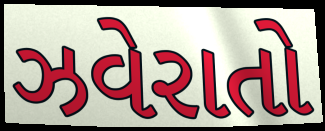
ઝવેરાતો